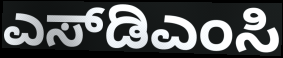
ಎಸ್‌ಡಿಎಂಸಿ